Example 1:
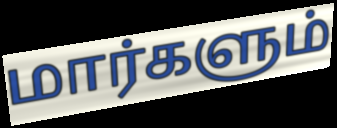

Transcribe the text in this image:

மார்களும்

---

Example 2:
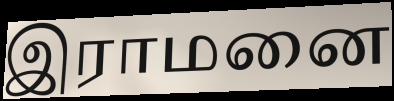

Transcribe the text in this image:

இராமனை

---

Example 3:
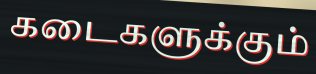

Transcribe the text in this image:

கடைகளுக்கும்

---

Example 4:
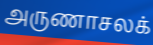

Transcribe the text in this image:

அருணாசலக்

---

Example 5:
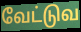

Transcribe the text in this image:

வேட்டுவ